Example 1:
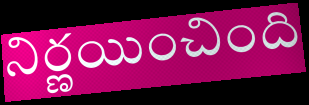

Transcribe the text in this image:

నిర్ణయించింది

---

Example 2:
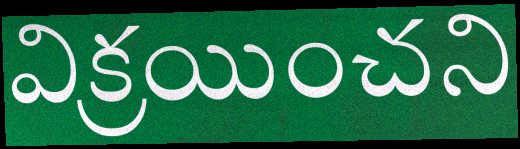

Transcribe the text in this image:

విక్రయించని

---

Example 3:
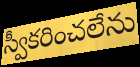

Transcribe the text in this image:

స్వీకరించలేను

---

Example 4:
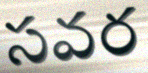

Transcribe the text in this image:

సవర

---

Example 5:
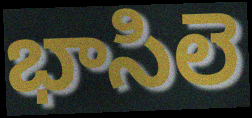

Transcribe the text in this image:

భాసిలె